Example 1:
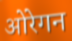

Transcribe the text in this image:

ओरेगन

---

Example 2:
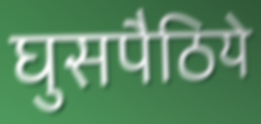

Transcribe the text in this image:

घुसपैठिये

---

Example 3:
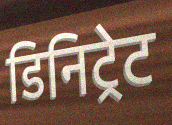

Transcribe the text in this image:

डिनिट्रेट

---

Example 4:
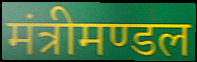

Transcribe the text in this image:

मंत्रीमण्डल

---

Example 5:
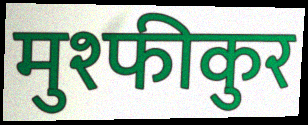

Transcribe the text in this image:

मुश्फीकुर